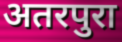
अतरपुरा